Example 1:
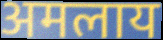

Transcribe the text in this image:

अमलाय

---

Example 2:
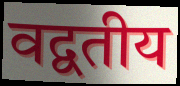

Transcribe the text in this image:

वद्वतीय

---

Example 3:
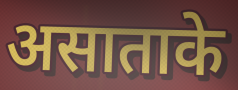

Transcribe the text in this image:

असाताके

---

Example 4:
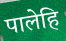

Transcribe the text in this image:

पालेहि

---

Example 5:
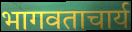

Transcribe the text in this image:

भागवताचार्य